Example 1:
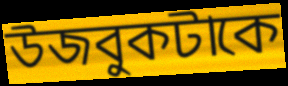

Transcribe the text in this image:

উজবুকটাকে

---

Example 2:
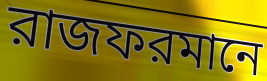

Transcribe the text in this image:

রাজফরমানে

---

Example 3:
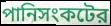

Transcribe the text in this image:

পানিসংকটের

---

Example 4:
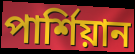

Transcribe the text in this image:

পার্শিয়ান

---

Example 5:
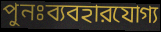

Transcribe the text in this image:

পুনঃব্যবহারযোগ্য